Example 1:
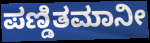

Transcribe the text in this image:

ಪಣ್ಡಿತಮಾನೀ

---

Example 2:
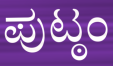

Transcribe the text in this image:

ಪುಟ್ಠಂ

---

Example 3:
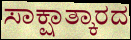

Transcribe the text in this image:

ಸಾಕ್ಷಾತ್ಕಾರದ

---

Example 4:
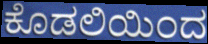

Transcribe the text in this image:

ಕೊಡಲಿಯಿಂದ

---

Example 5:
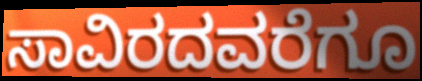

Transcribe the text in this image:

ಸಾವಿರದವರೆಗೂ